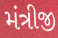
મંત્રીજી